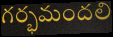
గర్భమందలి